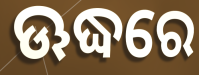
ଊଦ୍ଧରେ